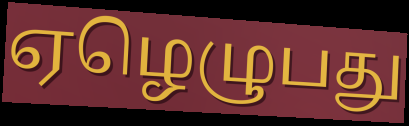
ஏழெழுபது